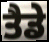
ਤੈਡੇ